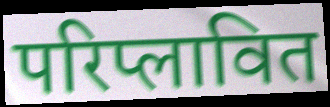
परिप्लावित